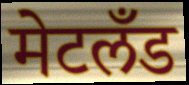
मेटलँड